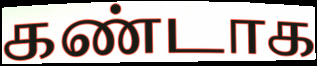
கண்டாக